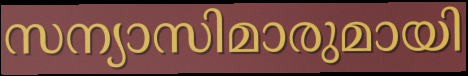
സന്യാസിമാരുമായി